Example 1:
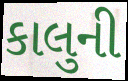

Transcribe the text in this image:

કાલુની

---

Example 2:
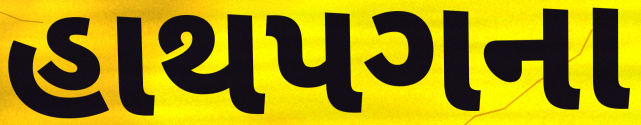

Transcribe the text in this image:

હાથપગના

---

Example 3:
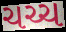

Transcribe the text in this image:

ચચ્ચ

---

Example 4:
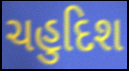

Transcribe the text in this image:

ચહુદિશ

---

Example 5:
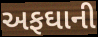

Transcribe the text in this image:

અફઘાની